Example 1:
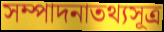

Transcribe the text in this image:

সম্পাদনাতথ্যসূত্র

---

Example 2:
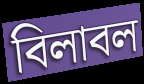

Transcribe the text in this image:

বিলাবল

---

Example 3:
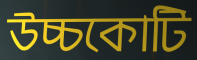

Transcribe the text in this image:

উচ্চকোটি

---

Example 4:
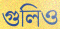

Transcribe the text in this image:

গুলিও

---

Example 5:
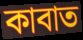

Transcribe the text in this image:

কাবাত